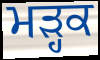
ਮੜ੍ਹਕ